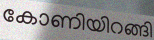
കോണിയിറങ്ങി